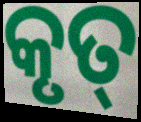
କୃତ୍